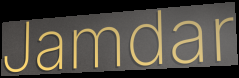
Jamdar